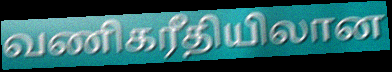
வணிகரீதியிலான